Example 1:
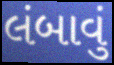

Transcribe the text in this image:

લંબાવું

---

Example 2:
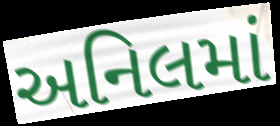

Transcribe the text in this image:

અનિલમાં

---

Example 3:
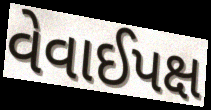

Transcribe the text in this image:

વેવાઈપક્ષ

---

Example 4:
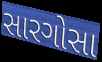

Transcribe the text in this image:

સારગોસા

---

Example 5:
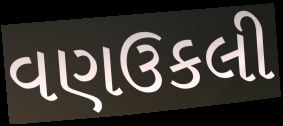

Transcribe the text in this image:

વણઉકલી